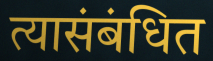
त्यासंबंधित